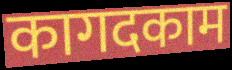
कागदकाम